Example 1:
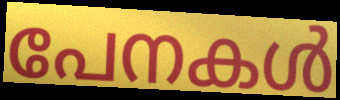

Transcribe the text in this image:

പേനകൾ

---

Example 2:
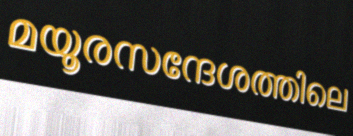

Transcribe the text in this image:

മയൂരസന്ദേശത്തിലെ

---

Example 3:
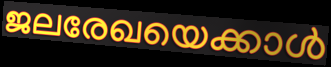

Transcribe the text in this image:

ജലരേഖയെക്കാൾ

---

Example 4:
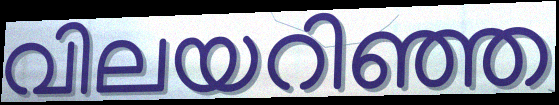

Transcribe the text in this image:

വിലയറിഞ്ഞ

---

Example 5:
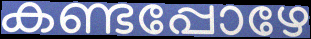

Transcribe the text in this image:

കണ്ടപ്പോഴേ